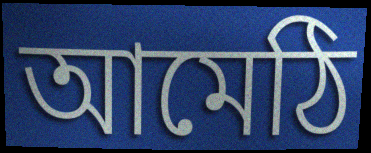
আমেঠি